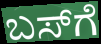
ಬಸ್‍ಗೆ